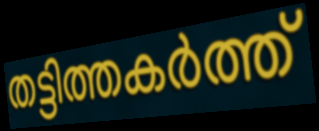
തട്ടിത്തകർത്ത്